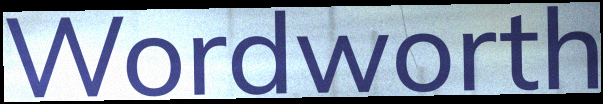
Wordworth